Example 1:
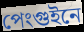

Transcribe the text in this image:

পেংগুইনে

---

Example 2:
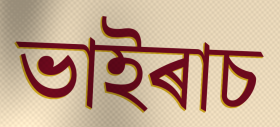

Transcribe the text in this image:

ভাইৰাচ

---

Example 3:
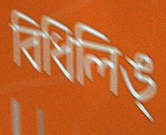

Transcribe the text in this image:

বিধিলিঙ্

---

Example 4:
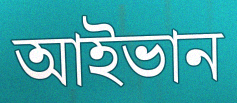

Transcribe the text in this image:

আইভান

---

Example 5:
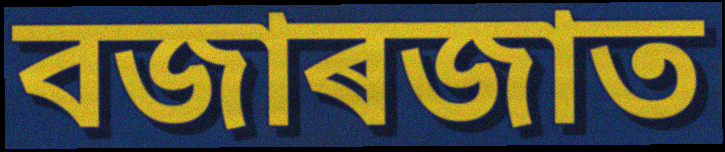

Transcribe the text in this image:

বজাৰজাত